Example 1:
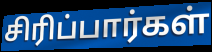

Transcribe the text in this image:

சிரிப்பார்கள்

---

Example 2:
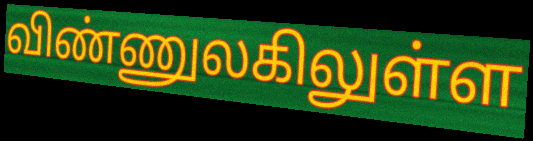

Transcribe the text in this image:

விண்ணுலகிலுள்ள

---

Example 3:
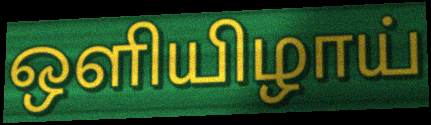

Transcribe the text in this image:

ஒளியிழாய்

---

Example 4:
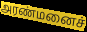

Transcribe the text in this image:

அரண்மனைச்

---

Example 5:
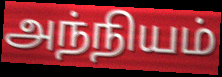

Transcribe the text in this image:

அந்நியம்